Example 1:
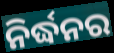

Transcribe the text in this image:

ନିର୍ଦ୍ଧନର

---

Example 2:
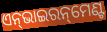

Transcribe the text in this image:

ଏନ୍‌ଭାଇରନ୍‌ମେଣ୍ଟ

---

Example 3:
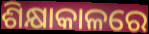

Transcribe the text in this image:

ଶିକ୍ଷାକାଳରେ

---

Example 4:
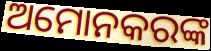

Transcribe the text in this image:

ଅମୋନକରଙ୍କ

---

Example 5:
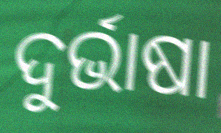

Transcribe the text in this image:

ଦୁର୍ଭାଷା